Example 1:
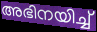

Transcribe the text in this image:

അഭിനയിച്ച്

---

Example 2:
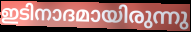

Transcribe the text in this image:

ഇടിനാദമായിരുന്നു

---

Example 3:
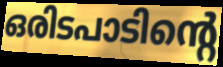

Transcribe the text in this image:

ഒരിടപാടിന്റെ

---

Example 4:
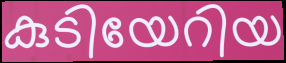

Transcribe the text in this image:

കുടിയേറിയ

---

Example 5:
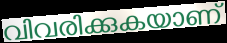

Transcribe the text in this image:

വിവരിക്കുകയാണ്